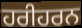
ਹਰੀਹਰਨ